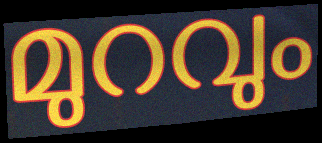
മുറവും